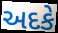
અદકે